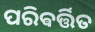
ପରିଵର୍ତ୍ତିତ